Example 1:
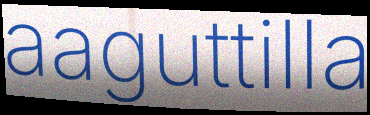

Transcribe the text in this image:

aaguttilla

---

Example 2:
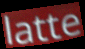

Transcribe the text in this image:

latte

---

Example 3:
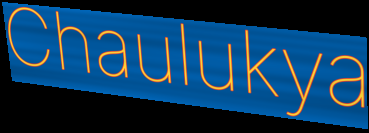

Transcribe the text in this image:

Chaulukya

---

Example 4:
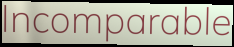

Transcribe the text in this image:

Incomparable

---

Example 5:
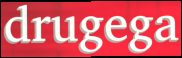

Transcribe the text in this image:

drugega